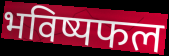
भविष्‍यफल